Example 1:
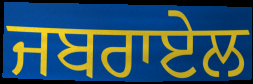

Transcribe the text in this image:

ਜਬਰਾਏਲ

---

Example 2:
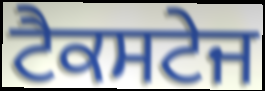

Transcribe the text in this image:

ਟੈਕਸਟੇਜ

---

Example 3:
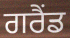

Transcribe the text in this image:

ਗਰੈਂਡ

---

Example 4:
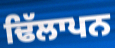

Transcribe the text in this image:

ਢਿੱਲਾਪਨ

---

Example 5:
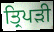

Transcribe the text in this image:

ਤ੍ਰਿਪਡ਼ੀ